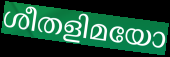
ശീതളിമയോ